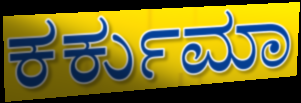
ಕರ್ಕುಮಾ